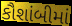
કૌશાંબીમાં